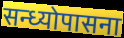
सन्ध्योपासना